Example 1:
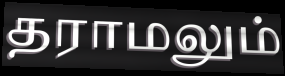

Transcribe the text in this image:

தராமலும்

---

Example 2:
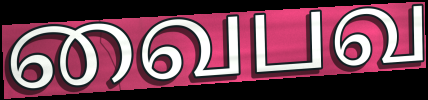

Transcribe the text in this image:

வைபவ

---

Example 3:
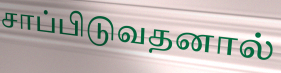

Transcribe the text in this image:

சாப்பிடுவதனால்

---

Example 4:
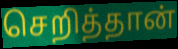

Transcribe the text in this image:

செறித்தான்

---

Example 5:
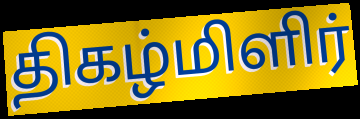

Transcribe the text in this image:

திகழ்மிளிர்